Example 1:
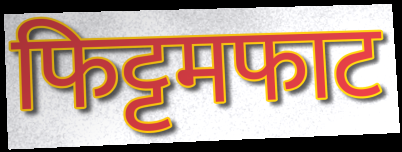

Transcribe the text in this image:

फिट्टमफाट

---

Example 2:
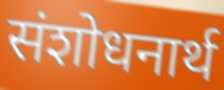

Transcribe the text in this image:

संशोधनार्थ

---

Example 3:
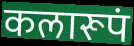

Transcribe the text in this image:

कलारूपं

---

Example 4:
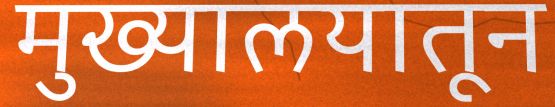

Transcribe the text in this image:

मुख्यालयातून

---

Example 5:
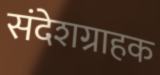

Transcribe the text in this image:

संदेशग्राहक